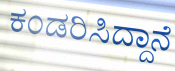
ಕಂಡರಿಸಿದ್ದಾನೆ